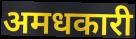
अमधकारी